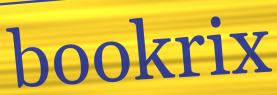
bookrix